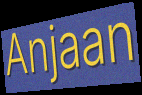
Anjaan